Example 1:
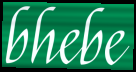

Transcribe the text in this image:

bhebe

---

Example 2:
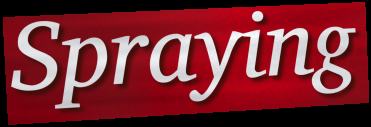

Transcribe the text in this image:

Spraying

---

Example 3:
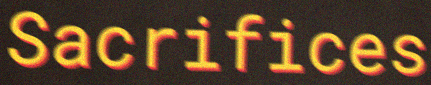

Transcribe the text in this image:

Sacrifices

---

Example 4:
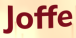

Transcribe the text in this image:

Joffe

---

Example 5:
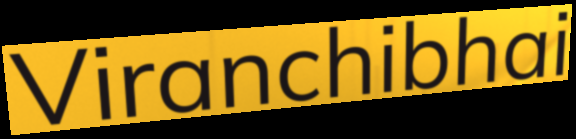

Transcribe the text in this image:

Viranchibhai